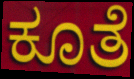
ಕೂತೆ